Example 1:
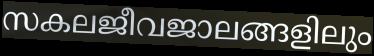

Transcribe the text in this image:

സകലജീവജാലങ്ങളിലും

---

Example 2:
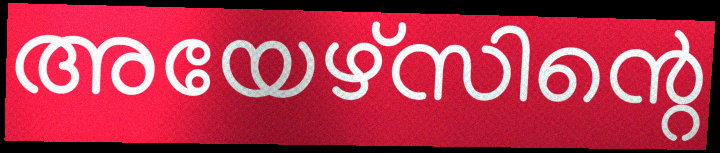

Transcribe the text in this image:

അയേഴ്സിന്റെ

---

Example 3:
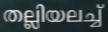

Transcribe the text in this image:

തല്ലിയലച്ച്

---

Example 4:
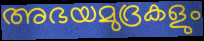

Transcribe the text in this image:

അഭയമുദ്രകളും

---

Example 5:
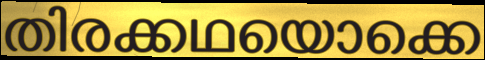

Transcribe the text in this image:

തിരക്കഥയൊക്കെ